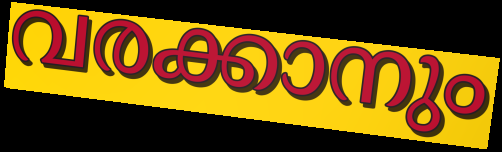
വരക്കാനും